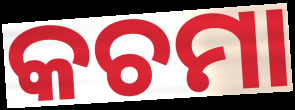
କଚମା